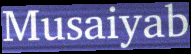
Musaiyab